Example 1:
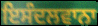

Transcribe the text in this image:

ਇਸੰਦਲਵਾਨਾ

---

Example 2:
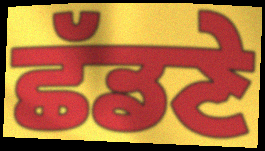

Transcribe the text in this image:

ਛੱਡਣੇ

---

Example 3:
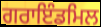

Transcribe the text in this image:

ਗਰਾਇੰਡਮਿਲ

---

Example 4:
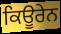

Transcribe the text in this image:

ਕਿਊਰੇਨ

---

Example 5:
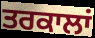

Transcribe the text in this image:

ਤਰਕਾਲਾਂ